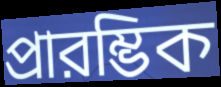
প্রারম্ভিক